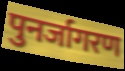
पुनर्जागरण